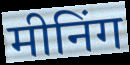
मीनिंग